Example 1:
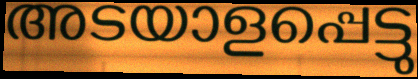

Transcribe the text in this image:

അടയാളപ്പെട്ടു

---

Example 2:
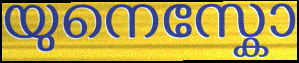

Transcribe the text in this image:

യുനെസ്കോ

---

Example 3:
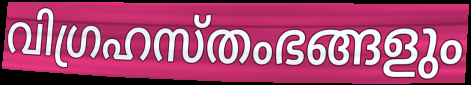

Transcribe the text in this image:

വിഗ്രഹസ്തംഭങ്ങളും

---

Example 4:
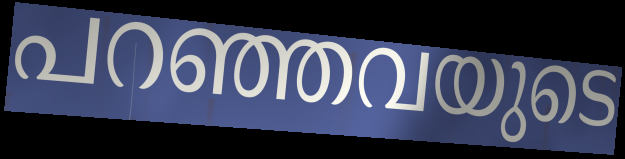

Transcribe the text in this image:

പറഞ്ഞവയുടെ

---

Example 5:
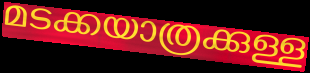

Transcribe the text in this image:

മടക്കയാത്രക്കുള്ള